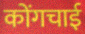
कोंगचाई